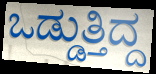
ಒಡ್ಡುತ್ತಿದ್ದ